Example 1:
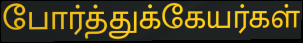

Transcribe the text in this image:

போர்த்துக்கேயர்கள்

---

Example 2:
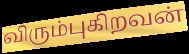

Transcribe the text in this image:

விரும்புகிறவன்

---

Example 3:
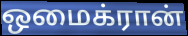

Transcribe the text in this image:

ஒமைக்ரான்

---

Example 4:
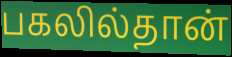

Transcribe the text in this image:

பகலில்தான்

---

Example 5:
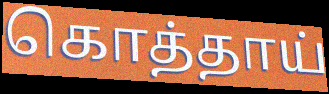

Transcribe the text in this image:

கொத்தாய்